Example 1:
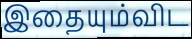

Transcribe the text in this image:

இதையும்விட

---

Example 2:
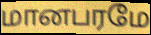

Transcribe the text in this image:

மானபரமே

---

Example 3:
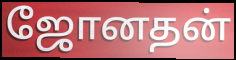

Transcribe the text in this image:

ஜோனதன்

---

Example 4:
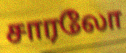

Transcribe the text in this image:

சாரலோ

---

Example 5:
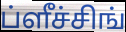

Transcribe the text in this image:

ப்ளீச்சிங்